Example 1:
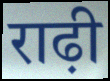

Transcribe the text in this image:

राढ़ी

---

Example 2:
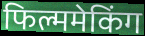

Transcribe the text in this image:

फिल्‍ममेकिंग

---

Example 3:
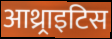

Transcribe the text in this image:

आथ्र्राइटिस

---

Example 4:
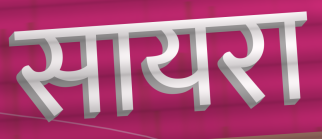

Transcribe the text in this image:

सायरा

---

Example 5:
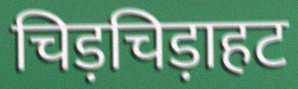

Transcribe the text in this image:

चिड़चिड़ाहट